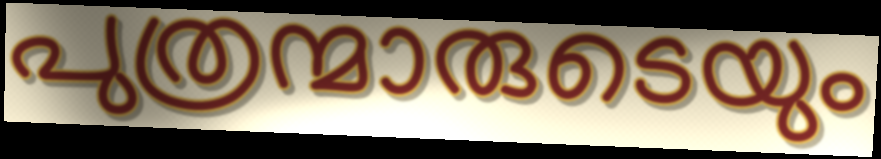
പുത്രന്മാരുടെയും